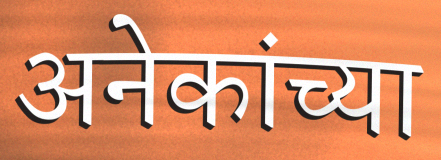
अनेकांच्या